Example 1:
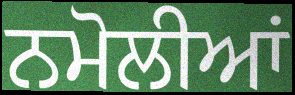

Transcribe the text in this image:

ਨਮੋਲੀਆਂ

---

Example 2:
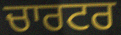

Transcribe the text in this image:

ਚਾਰਟਰ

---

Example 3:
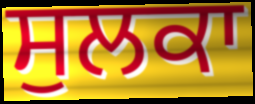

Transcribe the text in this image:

ਸੁਲਕਾ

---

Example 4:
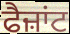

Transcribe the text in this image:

ਫੈਜ਼ਾਂਟ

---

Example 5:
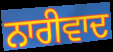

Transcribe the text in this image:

ਨਾਰੀਵਾਦ